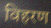
विहरण